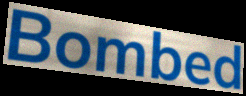
Bombed